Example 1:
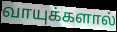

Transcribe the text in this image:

வாயுக்களால்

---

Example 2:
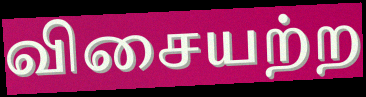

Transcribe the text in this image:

விசையற்ற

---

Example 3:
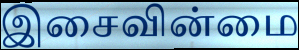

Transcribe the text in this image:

இசைவின்மை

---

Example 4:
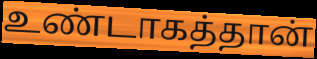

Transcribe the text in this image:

உண்டாகத்தான்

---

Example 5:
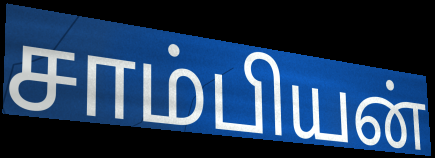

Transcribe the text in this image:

சாம்பியன்